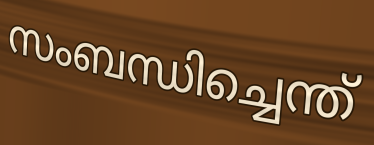
സംബന്ധിച്ചെന്ത്